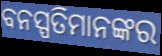
ବନସ୍ପତିମାନଙ୍କର